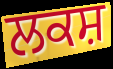
ਲਕਸ਼